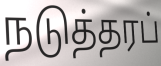
நடுத்தரப்